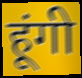
हूंगी